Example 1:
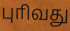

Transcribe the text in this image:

புரிவது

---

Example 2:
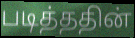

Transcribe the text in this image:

படித்ததின்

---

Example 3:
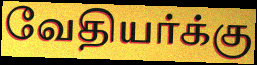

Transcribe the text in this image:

வேதியர்க்கு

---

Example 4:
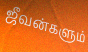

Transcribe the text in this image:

ஜீவன்களும்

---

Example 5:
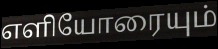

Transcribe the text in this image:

எளியோரையும்